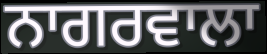
ਨਾਗਰਵਾਲਾ